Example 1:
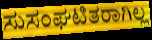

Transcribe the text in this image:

ಸುಸಂಘಟಿತರಾಗಿಲ್ಲ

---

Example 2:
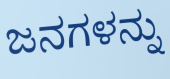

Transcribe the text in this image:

ಜನಗಳನ್ನು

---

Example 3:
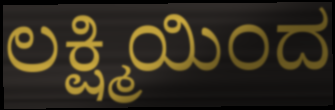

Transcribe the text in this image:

ಲಕ್ಷ್ಮಿಯಿಂದ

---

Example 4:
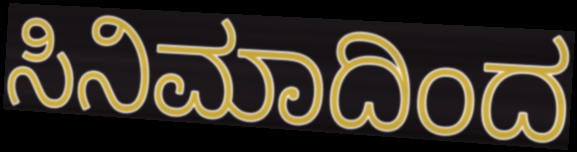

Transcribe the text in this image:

ಸಿನಿಮಾದಿಂದ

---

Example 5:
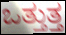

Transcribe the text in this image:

ಒತ್ತುತ್ತ